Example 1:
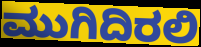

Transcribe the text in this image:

ಮುಗಿದಿರಲಿ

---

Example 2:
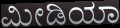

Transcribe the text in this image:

ಮೀಡಿಯಾ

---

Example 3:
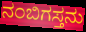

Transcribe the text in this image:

ನಂಬಿಗಸ್ತನು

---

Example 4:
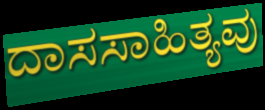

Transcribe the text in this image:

ದಾಸಸಾಹಿತ್ಯವು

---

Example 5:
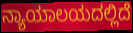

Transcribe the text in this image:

ನ್ಯಾಯಾಲಯದಲ್ಲಿದೆ